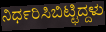
ನಿರ್ಧರಿಸಿಬಿಟ್ಟಿದ್ದಳು